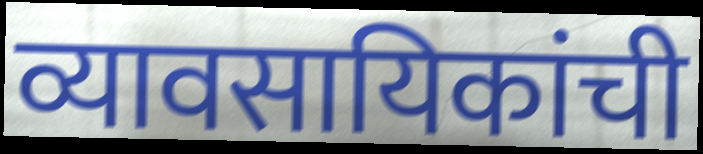
व्यावसायिकांची